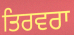
ਤਿਰਵਰਾ